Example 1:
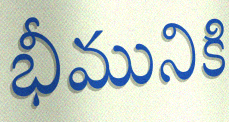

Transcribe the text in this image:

భీమునికి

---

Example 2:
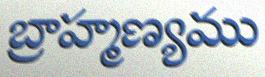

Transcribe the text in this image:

బ్రాహ్మణ్యము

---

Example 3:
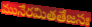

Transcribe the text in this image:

మునేరమితతేజసః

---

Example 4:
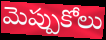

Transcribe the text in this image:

మెప్పుకోలు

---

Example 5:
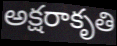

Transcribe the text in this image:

అక్షరాకృతి